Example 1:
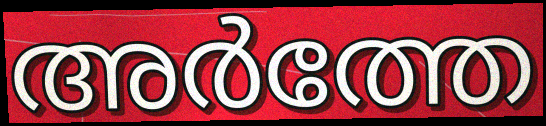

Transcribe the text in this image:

അർത്തേ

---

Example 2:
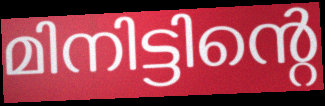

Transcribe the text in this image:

മിനിട്ടിന്റെ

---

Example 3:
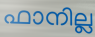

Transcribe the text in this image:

ഫാനില്ല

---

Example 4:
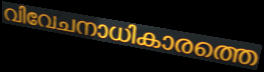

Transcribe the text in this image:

വിവേചനാധികാരത്തെ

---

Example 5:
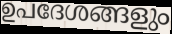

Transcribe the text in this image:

ഉപദേശങ്ങളും